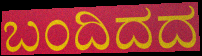
ಬಂದಿದದ